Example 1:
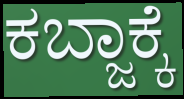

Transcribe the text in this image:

ಕಬ್ಜಾಕ್ಕೆ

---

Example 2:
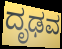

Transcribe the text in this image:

ದೃಢವ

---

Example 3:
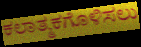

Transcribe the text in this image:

ಕಲಾತ್ಮಕಗೊಳಿಸಲು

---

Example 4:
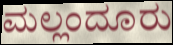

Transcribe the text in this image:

ಮಲ್ಲಂದೂರು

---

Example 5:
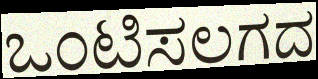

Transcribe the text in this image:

ಒಂಟಿಸಲಗದ